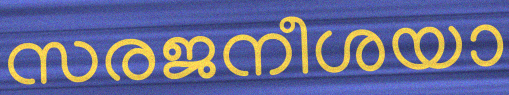
സരജനീശയാ